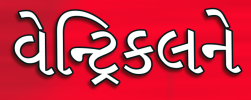
વેન્ટ્રિકલને